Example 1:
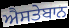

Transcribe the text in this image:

ਐਸਤੇਬਾਨ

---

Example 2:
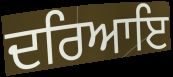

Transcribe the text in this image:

ਦਰਿਆਇ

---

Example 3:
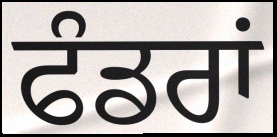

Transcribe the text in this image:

ਫੰਡਰਾਂ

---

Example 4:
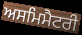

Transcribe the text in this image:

ਅਸਮਿਮੈਟਰੀ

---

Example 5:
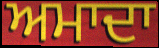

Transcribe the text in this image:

ਅਮਾਦਾ